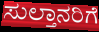
ಸುಲ್ತಾನರಿಗೆ